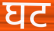
घट